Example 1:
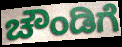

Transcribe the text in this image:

ಚೌಂಡಿಗೆ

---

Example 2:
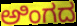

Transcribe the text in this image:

ಅಿಂಗದ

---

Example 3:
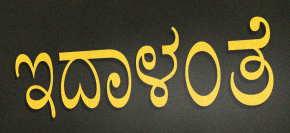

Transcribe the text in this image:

ಇದಾಳಂತೆ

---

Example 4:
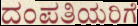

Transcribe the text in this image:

ದಂಪತಿಯರಿಗೆ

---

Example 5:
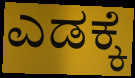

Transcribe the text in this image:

ಎಡಕ್ಕೆ